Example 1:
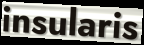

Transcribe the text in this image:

insularis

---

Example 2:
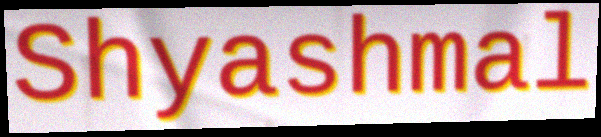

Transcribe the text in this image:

Shyashmal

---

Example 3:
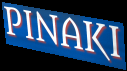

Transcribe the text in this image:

PINAKI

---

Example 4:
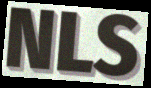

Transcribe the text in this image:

NLS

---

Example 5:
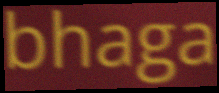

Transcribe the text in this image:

bhaga